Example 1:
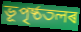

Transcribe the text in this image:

ভূপৃষ্ঠতলৰ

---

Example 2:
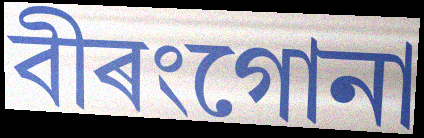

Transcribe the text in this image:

বীৰংগোনা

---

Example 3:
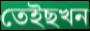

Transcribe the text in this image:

তেইছখন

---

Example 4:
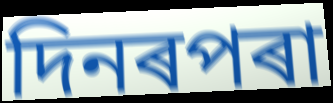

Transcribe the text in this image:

দিনৰপৰা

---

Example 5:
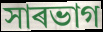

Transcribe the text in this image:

সাৰভাগ